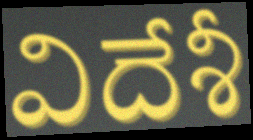
విదేశీ